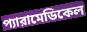
প্যারামেডিকেল